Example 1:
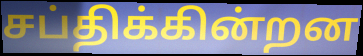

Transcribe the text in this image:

சப்திக்கின்றன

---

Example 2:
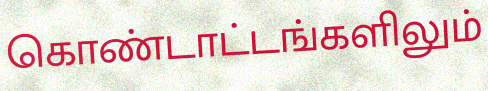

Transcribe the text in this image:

கொண்டாட்டங்களிலும்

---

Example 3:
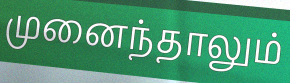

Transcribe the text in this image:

முனைந்தாலும்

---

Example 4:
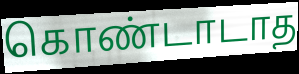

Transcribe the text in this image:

கொண்டாடாத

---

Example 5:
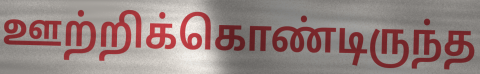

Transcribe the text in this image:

ஊற்றிக்கொண்டிருந்த